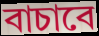
বাচাবে